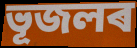
ভূজলৰ